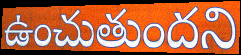
ఉంచుతుందని